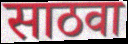
साठवा